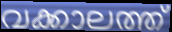
വക്കാലത്ത്